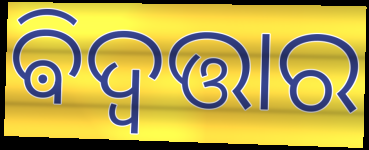
ଵିଦ୍ବତ୍ତାର